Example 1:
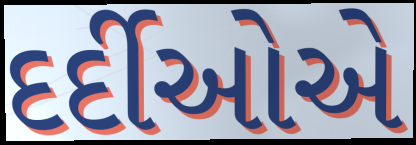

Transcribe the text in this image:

દર્દીઓએ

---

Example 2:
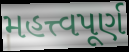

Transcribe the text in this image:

મહત્ત્વપૂર્ણ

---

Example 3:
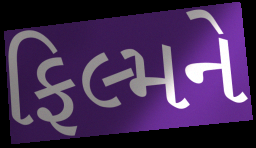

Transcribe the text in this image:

ફિલ્મને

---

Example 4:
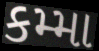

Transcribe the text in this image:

કમ્મા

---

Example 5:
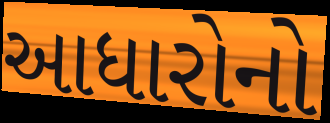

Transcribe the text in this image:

આધારોનો